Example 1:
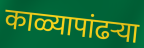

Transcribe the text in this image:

काळ्यापांढऱ्या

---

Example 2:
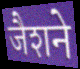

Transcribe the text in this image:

जैशने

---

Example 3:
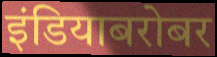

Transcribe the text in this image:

इंडियाबरोबर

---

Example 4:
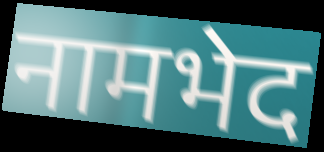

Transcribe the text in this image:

नामभेद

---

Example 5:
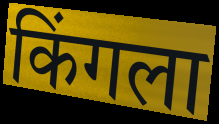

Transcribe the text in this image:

किंगला